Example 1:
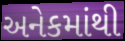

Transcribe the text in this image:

અનેકમાંથી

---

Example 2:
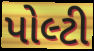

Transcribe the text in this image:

પોલ્ટી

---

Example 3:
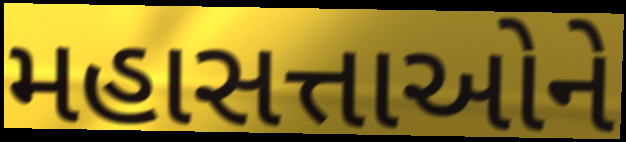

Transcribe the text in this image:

મહાસત્તાઓને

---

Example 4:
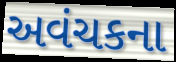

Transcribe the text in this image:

અવંચકના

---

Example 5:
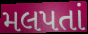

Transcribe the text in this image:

મલપતાં